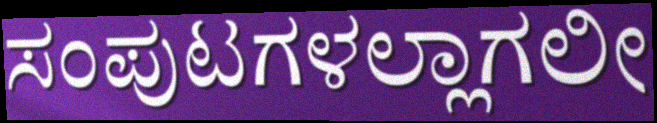
ಸಂಪುಟಗಳಲ್ಲಾಗಲೀ